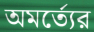
অমর্ত্যের